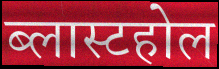
ब्लास्टहोल